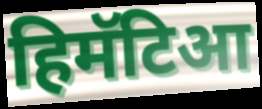
हिमॅटिआ